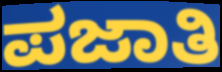
ಪಜಾತಿ